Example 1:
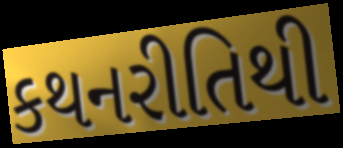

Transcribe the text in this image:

કથનરીતિથી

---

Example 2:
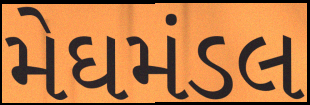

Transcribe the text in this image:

મેઘમંડલ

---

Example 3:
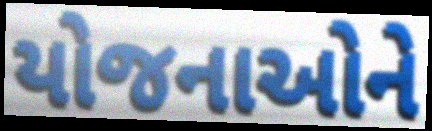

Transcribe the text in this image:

યોજનાઓને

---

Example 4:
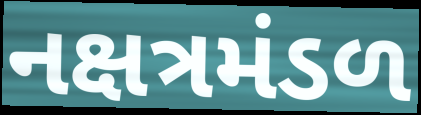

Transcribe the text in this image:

નક્ષત્રમંડળ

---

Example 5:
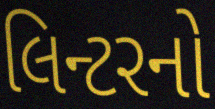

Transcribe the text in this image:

લિન્ટરનો